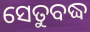
ସେତୁବଦ୍ଧ